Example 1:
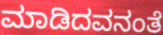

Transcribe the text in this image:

ಮಾಡಿದವನಂತೆ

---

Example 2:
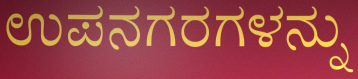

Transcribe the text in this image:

ಉಪನಗರಗಳನ್ನು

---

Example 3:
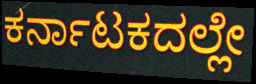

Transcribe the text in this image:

ಕರ್ನಾಟಕದಲ್ಲೇ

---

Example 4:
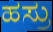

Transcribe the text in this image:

ಹಸ್ರು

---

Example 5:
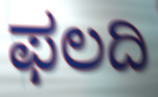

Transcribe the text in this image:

ಫಲದಿ